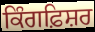
ਕਿੰਗਫ਼ਿਸ਼ਰ